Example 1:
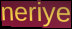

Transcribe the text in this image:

neriye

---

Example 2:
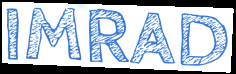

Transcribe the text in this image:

IMRAD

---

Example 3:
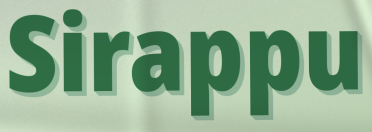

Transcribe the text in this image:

Sirappu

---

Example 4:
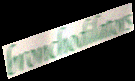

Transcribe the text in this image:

bronchodilators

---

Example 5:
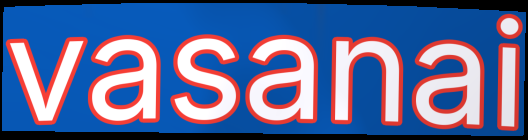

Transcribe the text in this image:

vasanai